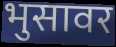
भुसावर